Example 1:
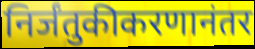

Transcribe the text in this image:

निर्जंतुकीकरणानंतर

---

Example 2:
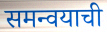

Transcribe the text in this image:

समन्वयाची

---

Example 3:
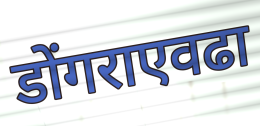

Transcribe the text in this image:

डोंगराएवढा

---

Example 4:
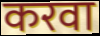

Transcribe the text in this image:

करवा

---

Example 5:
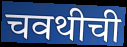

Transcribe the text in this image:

चवथीची